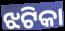
ଝଟିକା